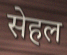
सेहल